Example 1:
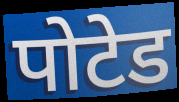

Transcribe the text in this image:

पोटेड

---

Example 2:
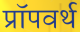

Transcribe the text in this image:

प्रॉपवर्थ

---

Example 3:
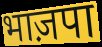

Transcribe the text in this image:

भाज़पा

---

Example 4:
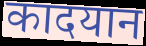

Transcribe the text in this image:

कादयान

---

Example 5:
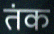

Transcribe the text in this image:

तंक